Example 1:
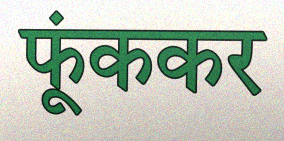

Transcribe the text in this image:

फूंककर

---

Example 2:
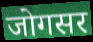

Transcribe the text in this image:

जोगसर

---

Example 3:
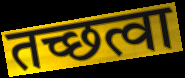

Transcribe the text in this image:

तच्छत्वा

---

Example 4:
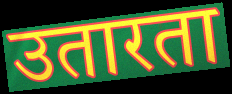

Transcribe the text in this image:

उतारता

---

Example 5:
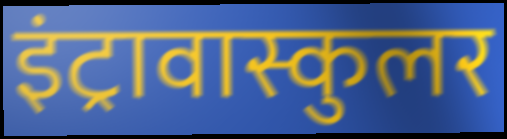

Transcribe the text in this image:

इंट्रावास्कुलर